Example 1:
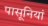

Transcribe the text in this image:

पासूनियां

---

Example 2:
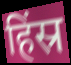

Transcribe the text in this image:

हिंस्र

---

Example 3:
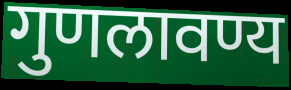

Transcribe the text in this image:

गुणलावण्य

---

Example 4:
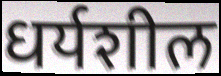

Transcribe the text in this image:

धर्यशील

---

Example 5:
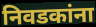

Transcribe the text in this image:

निवडकांना